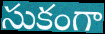
సుకంగా